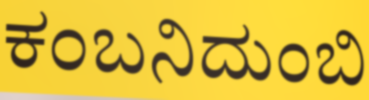
ಕಂಬನಿದುಂಬಿ